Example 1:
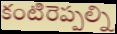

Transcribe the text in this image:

కంటిరెప్పల్ని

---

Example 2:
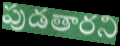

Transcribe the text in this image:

పుడతారని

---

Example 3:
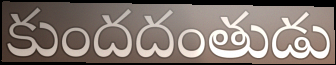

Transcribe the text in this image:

కుందదంతుడు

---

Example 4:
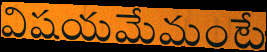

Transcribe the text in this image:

విషయమేమంటే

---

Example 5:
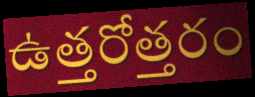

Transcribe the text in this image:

ఉత్తరోత్తరం